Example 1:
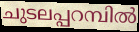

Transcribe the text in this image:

ചുടലപ്പറമ്പിൽ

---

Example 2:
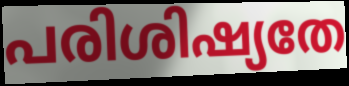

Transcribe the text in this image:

പരിശിഷ്യതേ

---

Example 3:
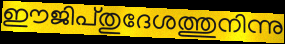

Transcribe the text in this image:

ഈജിപ്തുദേശത്തുനിന്നു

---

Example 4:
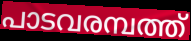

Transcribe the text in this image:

പാടവരമ്പത്ത്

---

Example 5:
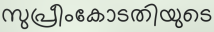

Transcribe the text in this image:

സുപ്രീംകോടതിയുടെ